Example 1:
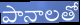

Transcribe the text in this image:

పానాలతో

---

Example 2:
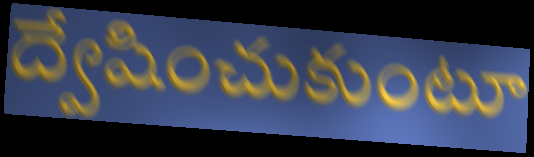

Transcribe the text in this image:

ద్వేషించుకుంటూ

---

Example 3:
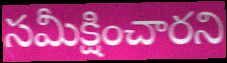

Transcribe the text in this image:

సమీక్షించారని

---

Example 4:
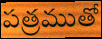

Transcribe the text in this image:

పత్రముతో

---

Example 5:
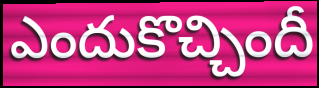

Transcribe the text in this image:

ఎందుకొచ్చిందీ